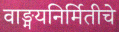
वाङ्मयनिर्मितीचे